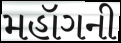
મહૉગની